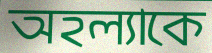
অহল্যাকে